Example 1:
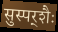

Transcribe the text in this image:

सुस्पर्शैः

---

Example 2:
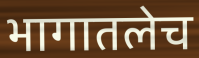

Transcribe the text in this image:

भागातलेच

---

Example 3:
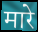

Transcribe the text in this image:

मारे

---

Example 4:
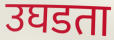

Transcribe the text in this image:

उघडता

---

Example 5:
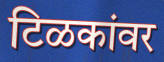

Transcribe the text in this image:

टिळकांवर